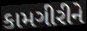
કામગીરીને